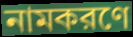
নামকরণে